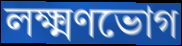
লক্ষ্মণভোগ